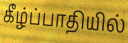
கீழ்ப்பாதியில்